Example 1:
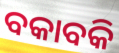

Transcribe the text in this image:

ବକାବକି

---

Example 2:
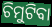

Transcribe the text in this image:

ଚିମୁଟିବା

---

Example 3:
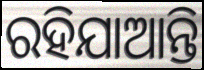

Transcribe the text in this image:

ରହିଯାଆନ୍ତି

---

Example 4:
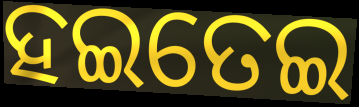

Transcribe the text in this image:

ହଇତେଇ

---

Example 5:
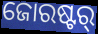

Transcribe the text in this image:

ଜୋରଷ୍ଟର୍